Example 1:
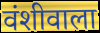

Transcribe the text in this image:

वंशीवाला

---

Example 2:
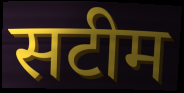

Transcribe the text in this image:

सटीम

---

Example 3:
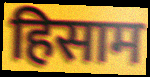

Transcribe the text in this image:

हिसाम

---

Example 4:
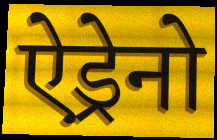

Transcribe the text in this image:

ऐड्रेनो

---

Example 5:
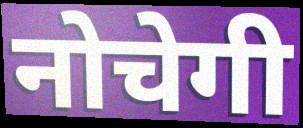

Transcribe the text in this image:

नोचेगी